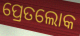
ପ୍ରେତଲୋକ